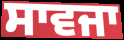
ਸਾਵਜਾ